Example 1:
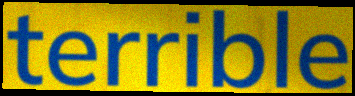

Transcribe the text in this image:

terrible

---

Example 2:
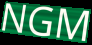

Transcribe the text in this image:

NGM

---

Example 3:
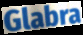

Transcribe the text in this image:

Glabra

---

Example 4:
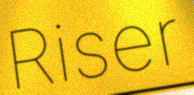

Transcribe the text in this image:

Riser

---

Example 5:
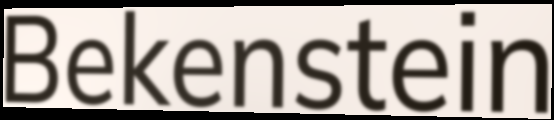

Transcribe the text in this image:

Bekenstein